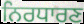
ਨਿਰਧਾਰਣ